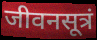
जीवनसूत्रं